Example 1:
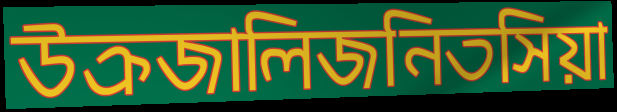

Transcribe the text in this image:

উক্রজালিজনিতসিয়া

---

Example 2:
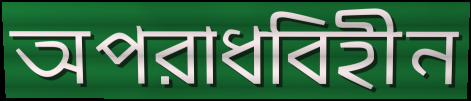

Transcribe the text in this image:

অপরাধবিহীন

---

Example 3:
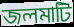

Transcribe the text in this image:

জলমাটি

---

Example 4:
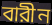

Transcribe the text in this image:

বারীন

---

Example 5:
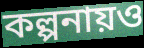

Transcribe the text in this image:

কল্পনায়ও